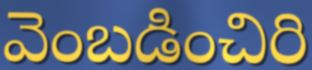
వెంబడించిరి